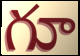
గూ